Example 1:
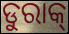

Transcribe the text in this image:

ଡୁରାକ୍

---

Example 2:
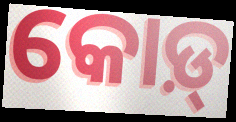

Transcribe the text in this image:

କୋଡ଼୍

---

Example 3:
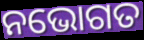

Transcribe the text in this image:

ନଭୋଗତ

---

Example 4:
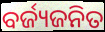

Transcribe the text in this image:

ବର୍ଜ୍ୟଜନିତ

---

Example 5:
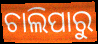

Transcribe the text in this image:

ଚାଲିପାରୁ